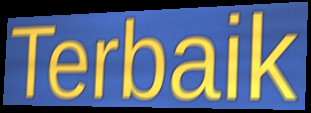
Terbaik